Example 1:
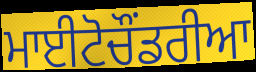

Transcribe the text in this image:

ਮਾਈਟੋਚੌਂਡਰੀਆ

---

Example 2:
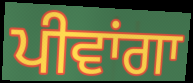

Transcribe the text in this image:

ਪੀਵਾਂਗਾ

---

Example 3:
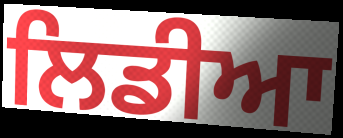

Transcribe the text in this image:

ਲਿਡੀਆ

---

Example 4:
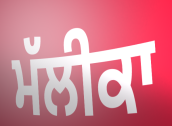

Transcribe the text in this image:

ਮੱਲੀਕਾ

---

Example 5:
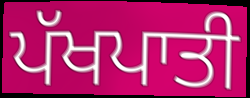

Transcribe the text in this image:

ਪੱਖਪਾਤੀ